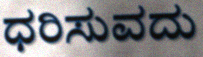
ಧರಿಸುವದು